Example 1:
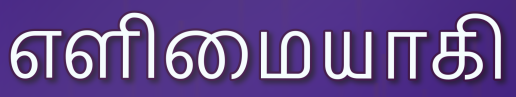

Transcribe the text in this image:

எளிமையாகி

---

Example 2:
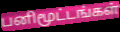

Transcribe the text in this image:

பனிமூட்டங்கள்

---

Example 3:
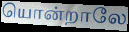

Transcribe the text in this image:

யொன்றாலே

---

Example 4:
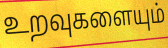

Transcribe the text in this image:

உறவுகளையும்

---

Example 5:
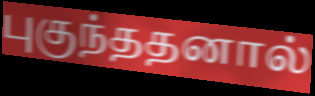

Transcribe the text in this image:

புகுந்ததனால்